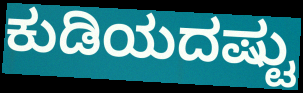
ಕುಡಿಯದಷ್ಟು